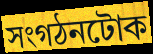
সংগঠনটোক